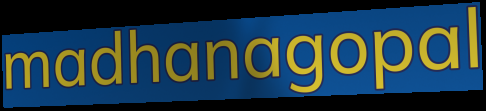
madhanagopal